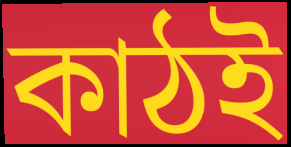
কাঠই